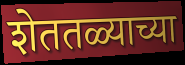
शेततळ्याच्या